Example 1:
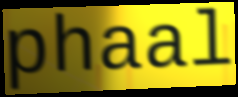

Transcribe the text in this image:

phaal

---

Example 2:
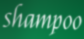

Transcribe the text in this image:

shampoo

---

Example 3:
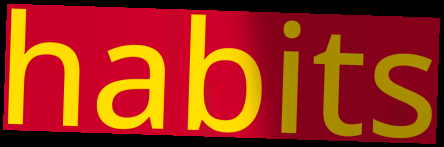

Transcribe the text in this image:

habits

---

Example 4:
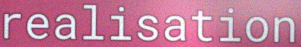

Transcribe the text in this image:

realisation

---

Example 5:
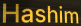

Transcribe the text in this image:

Hashim